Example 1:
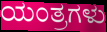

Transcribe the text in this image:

ಯಂತ್ರಗಳು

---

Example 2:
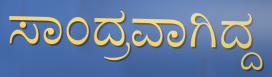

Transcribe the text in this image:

ಸಾಂದ್ರವಾಗಿದ್ದ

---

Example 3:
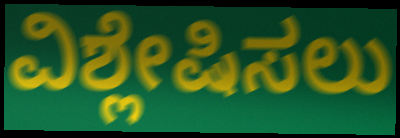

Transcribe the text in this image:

ವಿಶ್ಲೇಷಿಸಲು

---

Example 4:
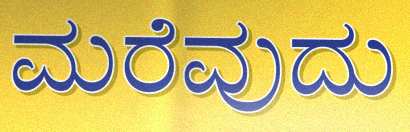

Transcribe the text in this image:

ಮರೆವುದು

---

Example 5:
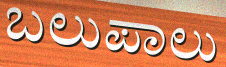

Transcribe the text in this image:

ಬಲುಪಾಲು